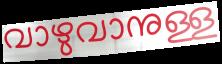
വാഴുവാനുള്ള